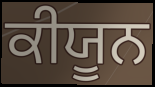
ਕੀਯੂਨ